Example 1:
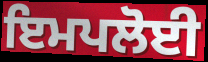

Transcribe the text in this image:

ਇਮਪਲੋਈ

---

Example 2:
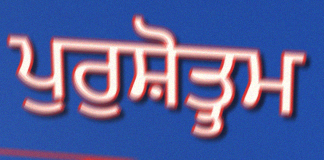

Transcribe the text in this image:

ਪੁਰੁਸ਼ੋਤ੍ਤਮ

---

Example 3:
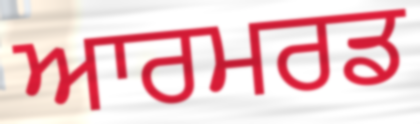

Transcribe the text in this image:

ਆਰਮਰਡ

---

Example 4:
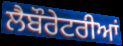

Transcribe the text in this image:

ਲੈਬੌਰੇਟਰੀਆਂ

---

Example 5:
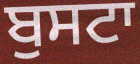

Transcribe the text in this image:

ਬੁਸਟਾ